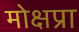
मोक्षप्रा